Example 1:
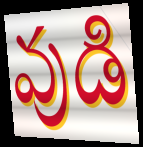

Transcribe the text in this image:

వుడి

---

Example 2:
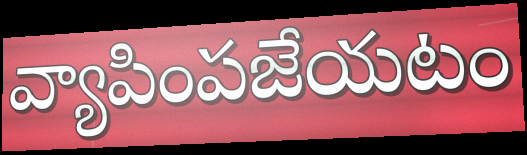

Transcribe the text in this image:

వ్యాపింపజేయటం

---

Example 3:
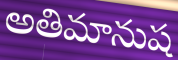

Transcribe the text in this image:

అతిమానుష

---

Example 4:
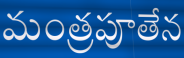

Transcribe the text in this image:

మంత్రపూతేన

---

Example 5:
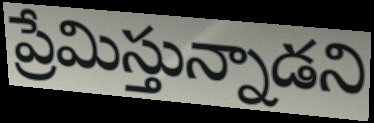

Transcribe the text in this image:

ప్రేమిస్తున్నాడని